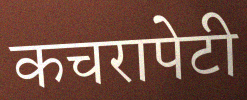
कचरापेटी